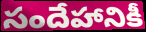
సందేహానికీ